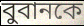
বুবানকে